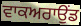
ਵਾਕਅਰਾਉਂਡ